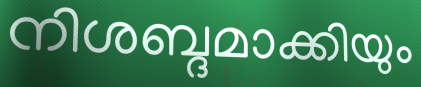
നിശബ്ദമാക്കിയും